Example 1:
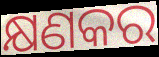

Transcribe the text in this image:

କ୍ଷଣକର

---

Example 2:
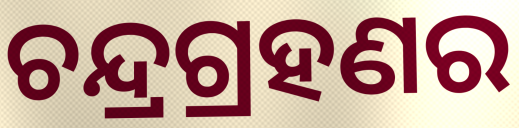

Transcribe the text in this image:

ଚନ୍ଦ୍ରଗ୍ରହଣର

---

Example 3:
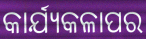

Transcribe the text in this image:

କାର୍ଯ୍ୟକଳାପର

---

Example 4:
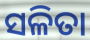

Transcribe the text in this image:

ସଳିତା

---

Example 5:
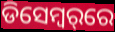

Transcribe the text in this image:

ଡିସେମ୍ବର୍‌ରେ